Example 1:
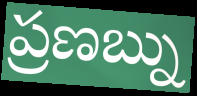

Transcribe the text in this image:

ప్రణబ్ను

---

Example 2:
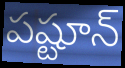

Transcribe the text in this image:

పష్టూన్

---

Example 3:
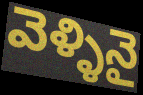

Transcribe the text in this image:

వెళ్ళినై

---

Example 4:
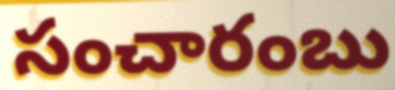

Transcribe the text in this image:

సంచారంబు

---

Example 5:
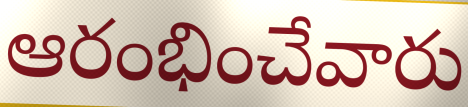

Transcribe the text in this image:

ఆరంభించేవారు